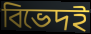
বিভেদই